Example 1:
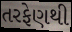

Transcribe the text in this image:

તરફેણથી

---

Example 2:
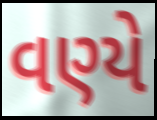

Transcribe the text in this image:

વણ્યે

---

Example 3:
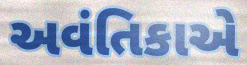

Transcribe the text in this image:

અવંતિકાએ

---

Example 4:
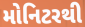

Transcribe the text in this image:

મોનિટરથી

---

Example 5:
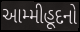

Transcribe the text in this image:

આમ્મીહૂદનો